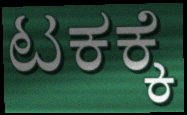
ಟಕಕ್ಕೆ